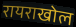
रायराखोल